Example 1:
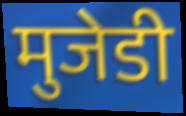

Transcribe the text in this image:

मुजेडी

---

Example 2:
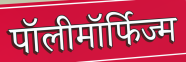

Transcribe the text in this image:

पॉलीमॉर्फिज्म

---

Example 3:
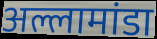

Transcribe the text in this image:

अल्लामांडा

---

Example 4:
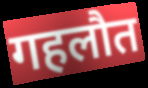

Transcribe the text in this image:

गहलौत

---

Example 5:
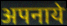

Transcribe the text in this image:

अपनाये